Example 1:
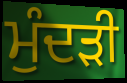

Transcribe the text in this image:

ਮੁੰਦੜੀ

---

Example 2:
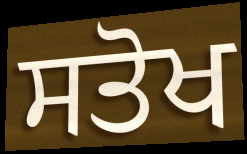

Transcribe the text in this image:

ਸਤੋਖ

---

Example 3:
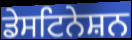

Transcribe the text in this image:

ਡੇਸਟਿਨੇਸ਼ਨ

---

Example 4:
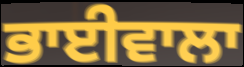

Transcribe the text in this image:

ਭਾਈਵਾਲਾ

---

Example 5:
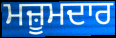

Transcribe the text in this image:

ਮਜ਼ੂਮਦਾਰ